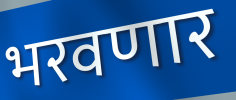
भरवणार